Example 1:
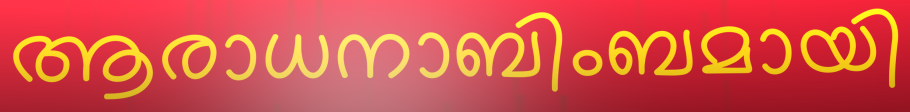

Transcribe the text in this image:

ആരാധനാബിംബമായി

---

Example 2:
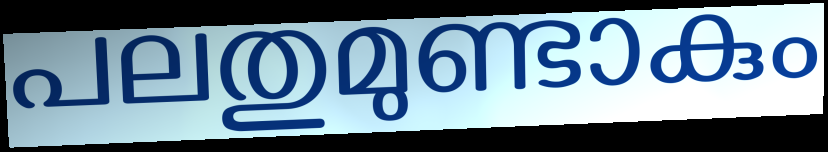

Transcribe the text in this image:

പലതുമുണ്ടാകും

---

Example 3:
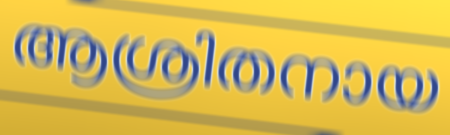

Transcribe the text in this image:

ആശ്രിതനായ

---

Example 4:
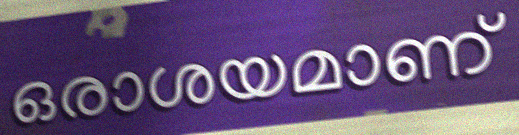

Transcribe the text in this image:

ഒരാശയമാണ്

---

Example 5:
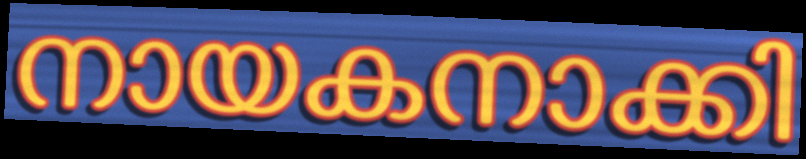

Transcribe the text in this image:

നായകനാക്കി